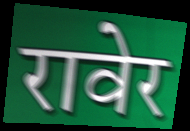
रावेर